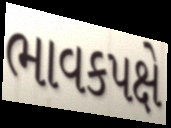
ભાવકપક્ષે